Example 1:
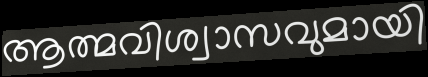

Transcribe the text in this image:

ആത്മവിശ്വാസവുമായി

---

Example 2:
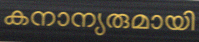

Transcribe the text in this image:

കനാന്യരുമായി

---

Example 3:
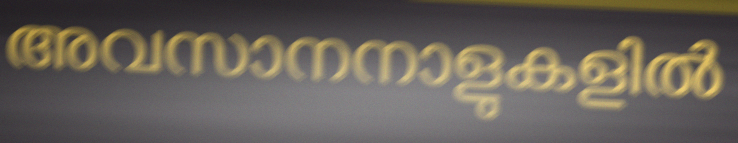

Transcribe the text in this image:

അവസാനനാളുകളിൽ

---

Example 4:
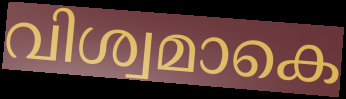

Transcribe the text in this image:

വിശ്വമാകെ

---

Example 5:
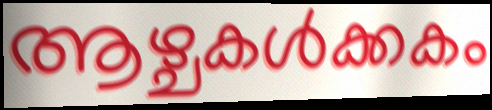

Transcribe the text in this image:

ആഴ്ചകൾക്കകം